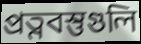
প্রত্নবস্তুগুলি